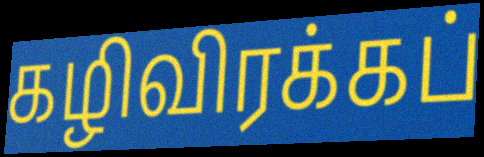
கழிவிரக்கப்